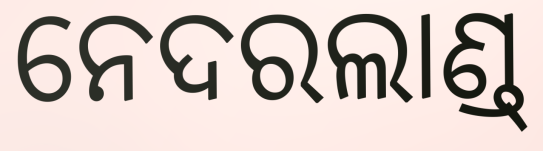
ନେଦରଲାଣ୍ଡ୍